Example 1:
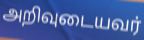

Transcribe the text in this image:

அறிவுடையவர்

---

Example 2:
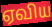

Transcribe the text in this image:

ஏவிய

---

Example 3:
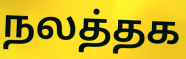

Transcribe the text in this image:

நலத்தக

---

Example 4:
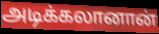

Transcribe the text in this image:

அடிக்கலானான்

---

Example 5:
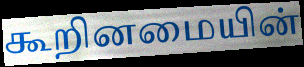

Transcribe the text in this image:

கூறினமையின்